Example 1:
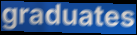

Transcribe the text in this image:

graduates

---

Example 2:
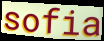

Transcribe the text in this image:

sofia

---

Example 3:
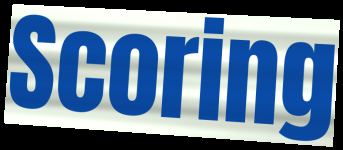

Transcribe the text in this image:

Scoring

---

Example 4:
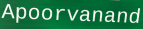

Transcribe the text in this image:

Apoorvanand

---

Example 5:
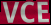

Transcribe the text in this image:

VCE